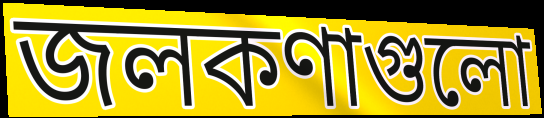
জলকণাগুলো